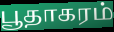
பூதாகரம்